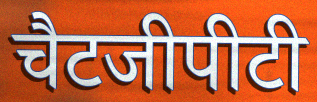
चैटजीपीटी